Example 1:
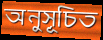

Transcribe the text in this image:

অনুসূচিত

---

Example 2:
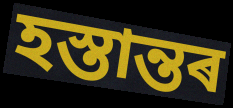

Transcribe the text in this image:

হস্তান্তৰ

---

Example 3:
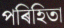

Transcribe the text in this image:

পৰিহিতা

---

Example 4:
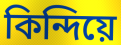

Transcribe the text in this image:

কিন্দিয়ে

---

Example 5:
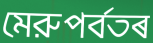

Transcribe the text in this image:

মেৰুপৰ্বতৰ